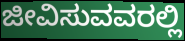
ಜೀವಿಸುವವರಲ್ಲಿ